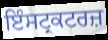
ਇੰਸਟ੍ਰਕਟਰਜ਼